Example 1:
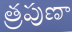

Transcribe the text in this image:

త్రపుణా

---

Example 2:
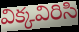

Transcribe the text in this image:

విక్కవిరిసి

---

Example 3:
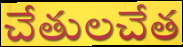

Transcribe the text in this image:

చేతులచేత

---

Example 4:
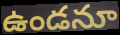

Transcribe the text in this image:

ఉండనూ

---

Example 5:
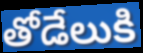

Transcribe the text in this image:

తోడేలుకి